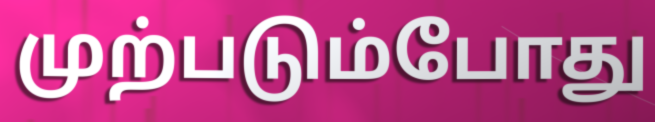
முற்படும்போது